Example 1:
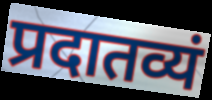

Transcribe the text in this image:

प्रदातव्यं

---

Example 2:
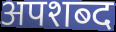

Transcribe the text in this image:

अपशब्‍द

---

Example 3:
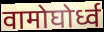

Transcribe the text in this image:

वामोघोर्ध्व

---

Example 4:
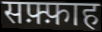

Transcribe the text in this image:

सफ़्फ़ाह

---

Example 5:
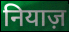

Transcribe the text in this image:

नियाज़